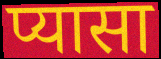
प्यासा